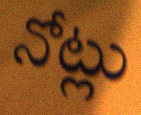
నోట్లు